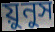
য়ুনুস